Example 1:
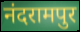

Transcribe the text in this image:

नंदरामपुर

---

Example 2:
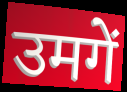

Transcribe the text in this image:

उमगें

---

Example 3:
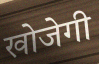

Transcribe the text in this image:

खोजेगी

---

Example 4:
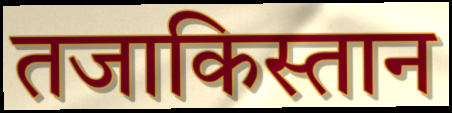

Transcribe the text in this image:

तजाकिस्‍तान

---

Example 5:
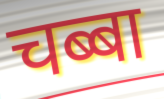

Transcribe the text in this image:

चब्बा